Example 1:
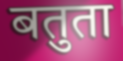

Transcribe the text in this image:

बतुता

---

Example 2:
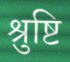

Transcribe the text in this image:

श्रुष्टि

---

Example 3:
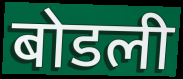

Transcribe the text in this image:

बोडली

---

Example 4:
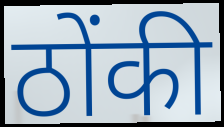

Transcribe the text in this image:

ठोंकी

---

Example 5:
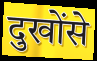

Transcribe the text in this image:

दुखोंसे